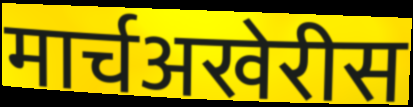
मार्चअखेरीस